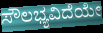
ಸೌಲಭ್ಯವಿದೆಯೇ